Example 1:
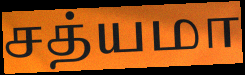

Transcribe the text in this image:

சத்யமா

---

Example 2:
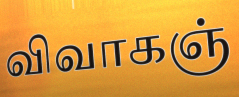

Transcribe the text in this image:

விவாகஞ்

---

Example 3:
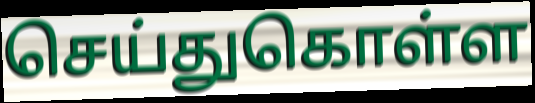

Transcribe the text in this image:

செய்துகொள்ள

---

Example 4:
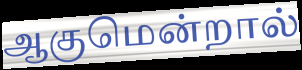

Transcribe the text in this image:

ஆகுமென்றால்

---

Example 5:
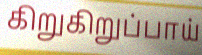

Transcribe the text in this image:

கிறுகிறுப்பாய்